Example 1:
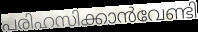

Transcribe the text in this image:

പരിഹസിക്കാൻവേണ്ടി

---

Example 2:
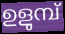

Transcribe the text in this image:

ഉളുമ്പ്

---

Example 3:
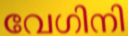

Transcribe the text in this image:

വേഗിനി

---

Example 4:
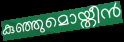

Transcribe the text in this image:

കുഞ്ഞുമൊയ്തീൻ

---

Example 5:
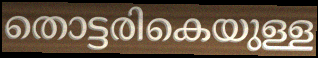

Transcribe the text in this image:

തൊട്ടരികെയുള്ള